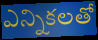
ఎన్నికలతో